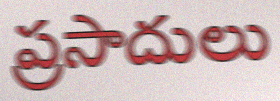
ప్రసాదులు